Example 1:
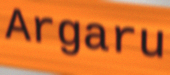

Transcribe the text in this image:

Argaru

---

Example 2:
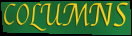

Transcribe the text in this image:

COLUMNS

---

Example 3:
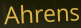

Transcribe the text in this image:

Ahrens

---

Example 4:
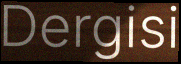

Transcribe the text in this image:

Dergisi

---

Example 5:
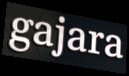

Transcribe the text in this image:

gajara